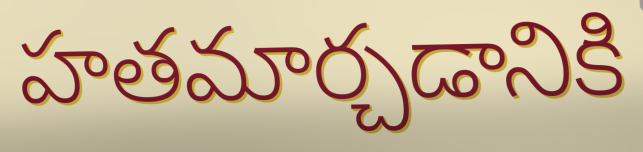
హతమార్చడానికి